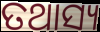
ତଥାସ୍ୟ